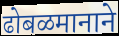
ढोबळमानाने